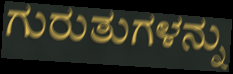
ಗುರುತುಗಳನ್ನು